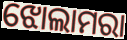
ଝୋଲାମରା